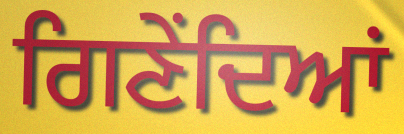
ਗਿਣੇਂਦਿਆਂ